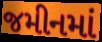
જમીનમાં